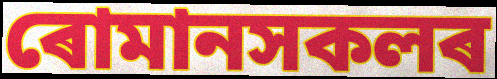
ৰোমানসকলৰ